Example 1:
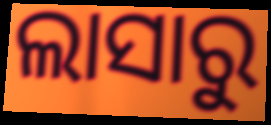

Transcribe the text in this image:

ଲାସାରୁ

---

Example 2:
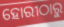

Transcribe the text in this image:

ହୋରୀଠାରୁ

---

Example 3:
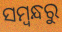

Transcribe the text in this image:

ସମ୍ୱନ୍ଧରୁ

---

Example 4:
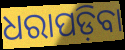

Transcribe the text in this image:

ଧରାପଡ଼ିବା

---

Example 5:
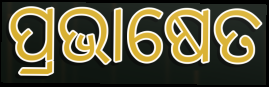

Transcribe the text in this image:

ପ୍ରଭାଷେତ